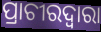
ପ୍ରାଚୀରଦ୍ୱାରା